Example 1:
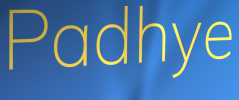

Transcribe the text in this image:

Padhye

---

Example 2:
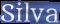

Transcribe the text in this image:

Silva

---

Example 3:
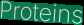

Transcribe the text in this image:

Proteins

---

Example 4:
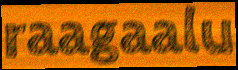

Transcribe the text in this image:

raagaalu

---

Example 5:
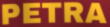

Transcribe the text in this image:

PETRA